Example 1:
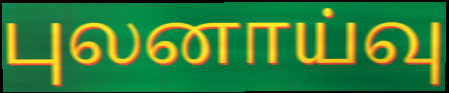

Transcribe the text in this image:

புலனாய்வு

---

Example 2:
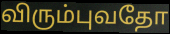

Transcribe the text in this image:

விரும்புவதோ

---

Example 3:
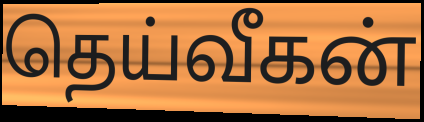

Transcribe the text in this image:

தெய்வீகன்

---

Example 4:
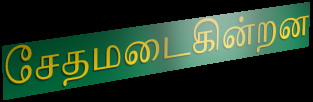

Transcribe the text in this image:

சேதமடைகின்றன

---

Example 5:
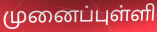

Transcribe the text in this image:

முனைப்புள்ளி